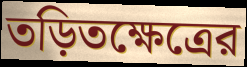
তড়িতক্ষেত্রের